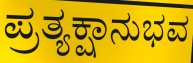
ಪ್ರತ್ಯಕ್ಷಾನುಭವ